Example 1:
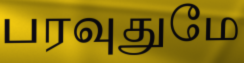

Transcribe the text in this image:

பரவுதுமே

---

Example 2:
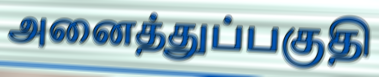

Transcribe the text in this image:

அனைத்துப்பகுதி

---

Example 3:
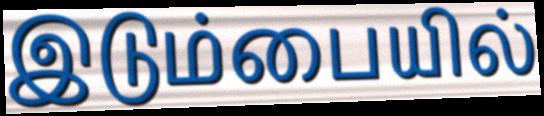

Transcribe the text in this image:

இடும்பையில்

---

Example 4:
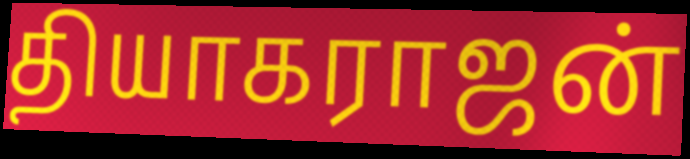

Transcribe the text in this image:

தியாகராஜன்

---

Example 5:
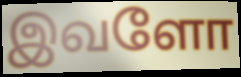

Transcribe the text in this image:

இவளோ